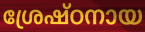
ശ്രേഷ്ഠനായ